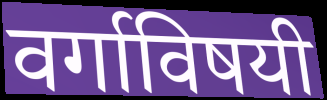
वर्गाविषयी